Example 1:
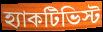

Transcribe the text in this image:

হ্যাকটিভিস্ট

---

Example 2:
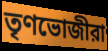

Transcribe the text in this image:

তৃণভোজীরা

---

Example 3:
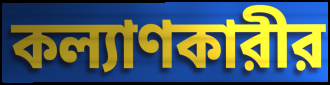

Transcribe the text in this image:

কল্যাণকারীর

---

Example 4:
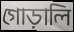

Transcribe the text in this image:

গোড়ালি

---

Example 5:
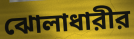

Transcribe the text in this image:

ঝোলাধারীর